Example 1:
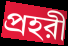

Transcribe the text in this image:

প্রহরী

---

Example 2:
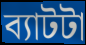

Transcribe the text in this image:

ব্যাটটা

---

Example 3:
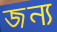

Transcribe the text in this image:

জন্য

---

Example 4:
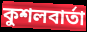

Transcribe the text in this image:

কুশলবার্তা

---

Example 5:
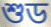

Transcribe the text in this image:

শুড